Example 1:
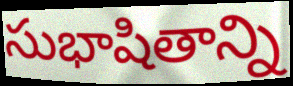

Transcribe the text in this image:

సుభాషితాన్ని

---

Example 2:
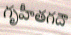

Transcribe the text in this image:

గృహీతగదౌ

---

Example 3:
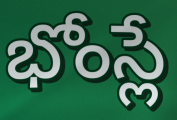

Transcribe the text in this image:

భోంస్లే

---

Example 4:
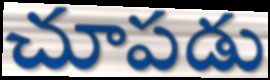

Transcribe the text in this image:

చూపడు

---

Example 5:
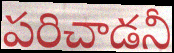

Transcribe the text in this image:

పరిచాడనీ